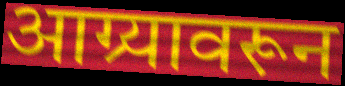
आग्र्यावरून